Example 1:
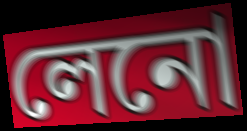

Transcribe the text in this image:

লেনো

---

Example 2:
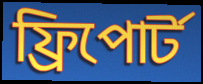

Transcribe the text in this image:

ফ্রিপোর্ট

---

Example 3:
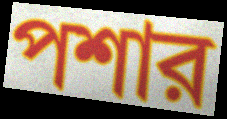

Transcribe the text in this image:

পশার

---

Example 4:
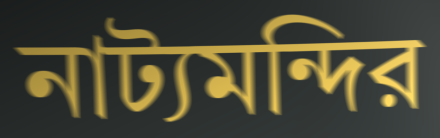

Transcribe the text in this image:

নাট্যমন্দির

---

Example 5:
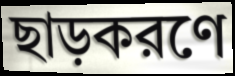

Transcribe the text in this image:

ছাড়করণে